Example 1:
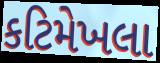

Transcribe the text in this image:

કટિમેખલા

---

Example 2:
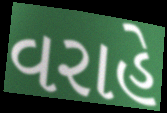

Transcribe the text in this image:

વરાહે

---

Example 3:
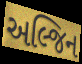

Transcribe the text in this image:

અલ્જિન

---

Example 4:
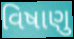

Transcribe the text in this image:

વિષાણુ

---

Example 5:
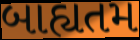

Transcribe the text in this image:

બાહ્યતમ